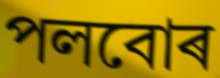
পলবোৰ